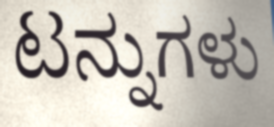
ಟನ್ನುಗಳು